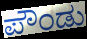
ಪೌಂಡು